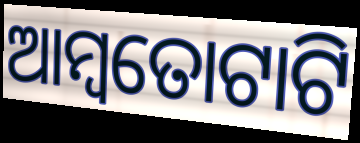
ଆମ୍ବତୋଟାଟି